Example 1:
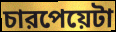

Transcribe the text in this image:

চারপেয়েটা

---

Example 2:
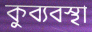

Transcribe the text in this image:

কুব্যবস্থা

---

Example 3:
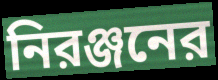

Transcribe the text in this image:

নিরঞ্জনের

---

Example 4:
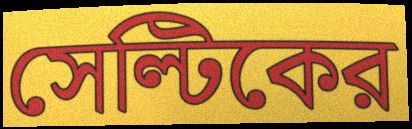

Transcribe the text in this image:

সেল্টিকের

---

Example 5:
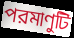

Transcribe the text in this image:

পরমাণুটি